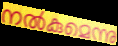
നൽകുമെന്നു